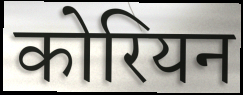
कोरियन